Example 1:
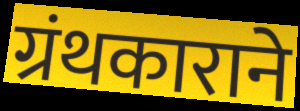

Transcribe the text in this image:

ग्रंथकाराने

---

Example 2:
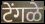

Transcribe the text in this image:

टेंगळे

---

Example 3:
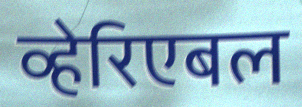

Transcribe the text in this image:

व्हेरिएबल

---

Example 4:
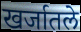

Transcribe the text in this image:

खर्जातले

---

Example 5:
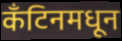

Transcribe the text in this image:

कँटिनमधून